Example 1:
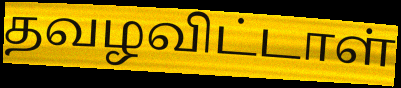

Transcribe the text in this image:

தவழவிட்டாள்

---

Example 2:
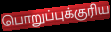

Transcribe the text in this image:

பொறுப்புக்குரிய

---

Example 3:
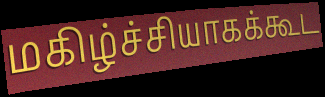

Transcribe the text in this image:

மகிழ்ச்சியாகக்கூட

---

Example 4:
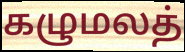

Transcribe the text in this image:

கழுமலத்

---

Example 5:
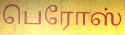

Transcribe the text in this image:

பெரோஸ்